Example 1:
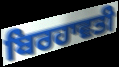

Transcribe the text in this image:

ਬਿਰਹਾਵਤੀ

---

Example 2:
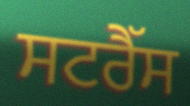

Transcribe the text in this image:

ਸਟਰੈੱਸ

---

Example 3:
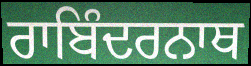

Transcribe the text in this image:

ਰਾਬਿੰਦਰਨਾਥ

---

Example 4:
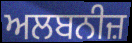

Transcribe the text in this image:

ਅਲਬਨੀਜ਼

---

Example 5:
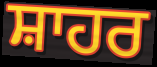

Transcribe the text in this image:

ਸ਼ਾਹਰ